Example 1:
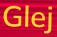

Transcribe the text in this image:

Glej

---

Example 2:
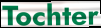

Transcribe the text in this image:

Tochter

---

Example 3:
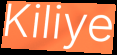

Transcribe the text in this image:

Kiliye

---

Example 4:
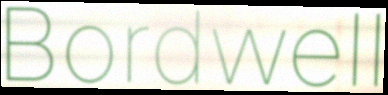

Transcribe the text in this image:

Bordwell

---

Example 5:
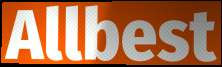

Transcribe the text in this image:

Allbest